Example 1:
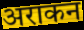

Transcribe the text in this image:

अराकन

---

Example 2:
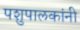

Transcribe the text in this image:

पशुपालकांनी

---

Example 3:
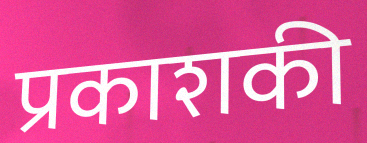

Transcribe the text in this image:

प्रकाशकी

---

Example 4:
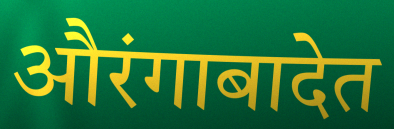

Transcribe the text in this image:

औरंगाबादेत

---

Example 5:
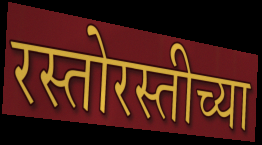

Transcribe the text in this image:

रस्तोरस्तीच्या